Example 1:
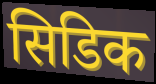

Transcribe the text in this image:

सिडिक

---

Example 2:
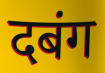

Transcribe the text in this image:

दबंग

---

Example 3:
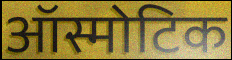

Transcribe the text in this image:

ऑस्मोटिक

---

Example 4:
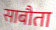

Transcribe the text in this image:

साबौता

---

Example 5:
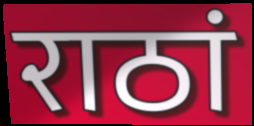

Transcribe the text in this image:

राठां